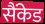
सैंकेड